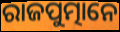
ରାଜପୁତ୍ମାନେ